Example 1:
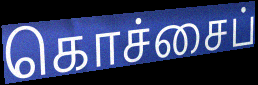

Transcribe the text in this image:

கொச்சைப்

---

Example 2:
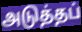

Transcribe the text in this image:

அடுத்தப்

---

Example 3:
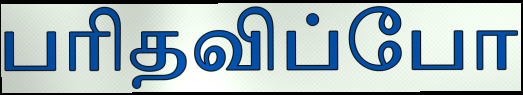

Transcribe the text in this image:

பரிதவிப்போ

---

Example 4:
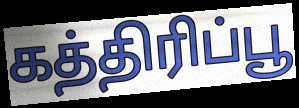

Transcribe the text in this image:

கத்திரிப்பூ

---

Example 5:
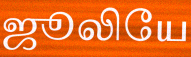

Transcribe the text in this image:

ஜூலியே